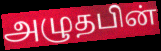
அழுதபின்